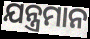
ଯନ୍ତ୍ରମାନ